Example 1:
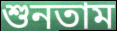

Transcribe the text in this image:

শুনতাম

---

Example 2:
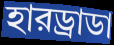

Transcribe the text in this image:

হারড্রাডা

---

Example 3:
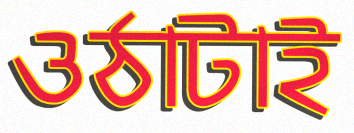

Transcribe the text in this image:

ওঠাটাই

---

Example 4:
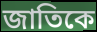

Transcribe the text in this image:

জাতিকে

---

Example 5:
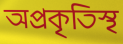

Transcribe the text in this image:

অপ্রকৃতিস্থ